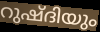
റുഷ്ദിയും